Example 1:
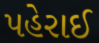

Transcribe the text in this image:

પહેરાઈ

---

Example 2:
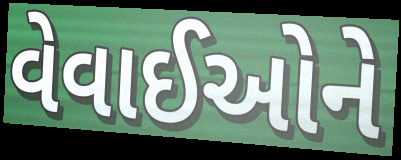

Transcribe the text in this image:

વેવાઈઓને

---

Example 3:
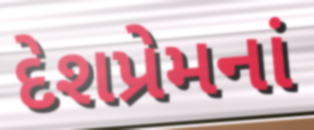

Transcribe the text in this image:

દેશપ્રેમનાં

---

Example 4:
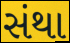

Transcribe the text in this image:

સંથા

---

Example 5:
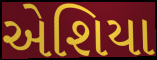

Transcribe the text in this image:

એશિયા